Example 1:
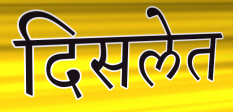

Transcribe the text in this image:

दिसलेत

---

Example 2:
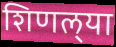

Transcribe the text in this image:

शिणल्या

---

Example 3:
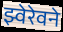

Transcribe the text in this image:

झ्वेरेवने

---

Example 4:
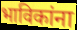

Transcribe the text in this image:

भाविकांना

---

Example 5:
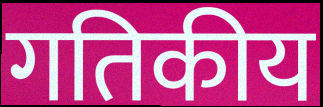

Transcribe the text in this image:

गतिकीय